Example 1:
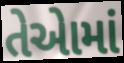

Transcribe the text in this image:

તેએામાં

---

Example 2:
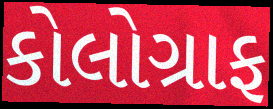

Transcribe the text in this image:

કોલોગ્રાફ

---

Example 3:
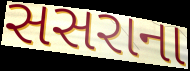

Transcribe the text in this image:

સસરાના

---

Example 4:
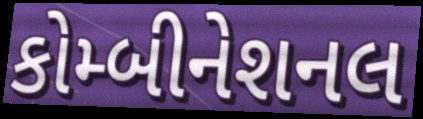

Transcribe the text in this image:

કોમ્બીનેશનલ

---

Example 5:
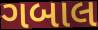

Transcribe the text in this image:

ગબાલ